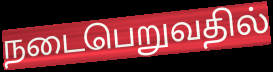
நடைபெறுவதில்